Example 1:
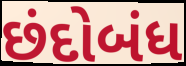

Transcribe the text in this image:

છંદોબંધ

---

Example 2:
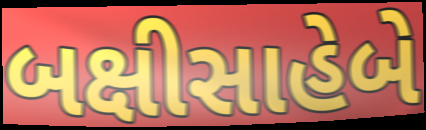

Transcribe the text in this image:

બક્ષીસાહેબે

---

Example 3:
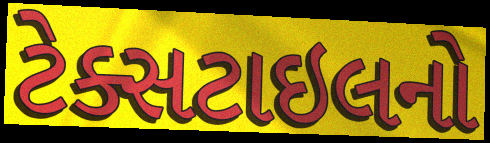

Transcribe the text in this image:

ટેક્સટાઇલનો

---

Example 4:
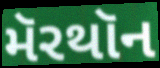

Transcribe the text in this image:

મૅરથૉન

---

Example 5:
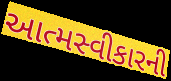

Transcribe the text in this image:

આત્મસ્વીકારની